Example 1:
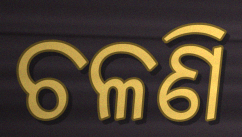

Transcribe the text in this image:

ଚଳଣି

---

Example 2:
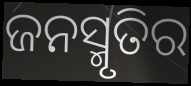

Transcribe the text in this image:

ଜନସ୍ମୃତିର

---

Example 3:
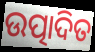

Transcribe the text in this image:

ଉତ୍ପାଦିତ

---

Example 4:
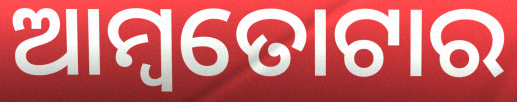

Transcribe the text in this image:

ଆମ୍ବତୋଟାର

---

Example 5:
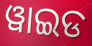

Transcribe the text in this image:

ୱାଇଡ